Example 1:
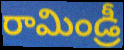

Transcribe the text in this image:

రామిండ్రీ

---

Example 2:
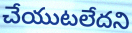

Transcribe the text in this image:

చేయుటలేదని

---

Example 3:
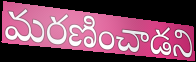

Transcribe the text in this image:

మరణించాడని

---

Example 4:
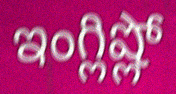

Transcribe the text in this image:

ఇంగ్లిష్లో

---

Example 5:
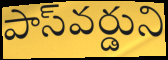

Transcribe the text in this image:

పాస్‌వర్డుని